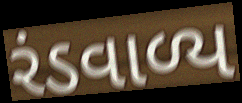
રંડવાળ્ય